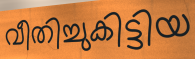
വീതിച്ചുകിട്ടിയ